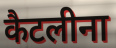
कैटलीना